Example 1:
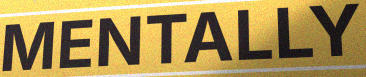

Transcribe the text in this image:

MENTALLY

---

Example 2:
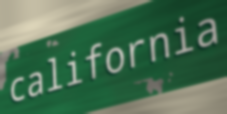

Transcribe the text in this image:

california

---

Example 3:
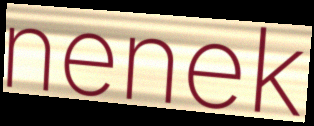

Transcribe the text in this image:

nenek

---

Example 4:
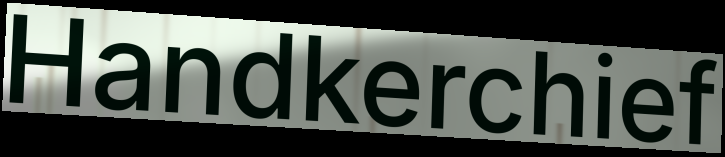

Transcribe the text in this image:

Handkerchief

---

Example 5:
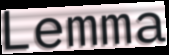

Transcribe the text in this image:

Lemma